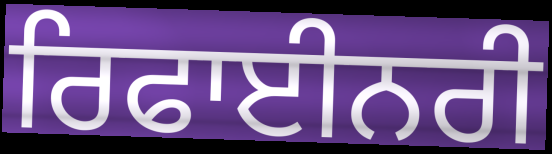
ਰਿਫਾਈਨਰੀ